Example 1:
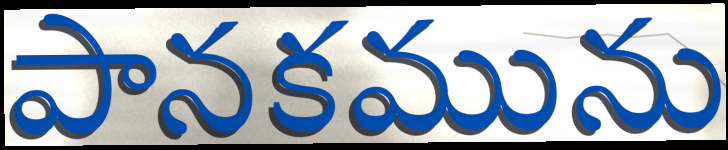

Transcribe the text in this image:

పానకమును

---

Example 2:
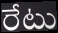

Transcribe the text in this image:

రేటు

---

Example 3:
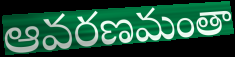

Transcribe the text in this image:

ఆవరణమంతా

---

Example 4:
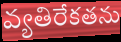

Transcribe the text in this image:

వ్యతిరేకతను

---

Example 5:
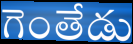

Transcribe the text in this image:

గెంతేడు